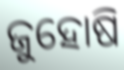
ଜୁହୋଷି